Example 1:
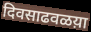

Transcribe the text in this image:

दिवसाढवळय़ा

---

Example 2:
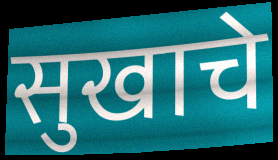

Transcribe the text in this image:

सुखाचे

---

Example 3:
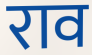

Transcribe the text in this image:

राव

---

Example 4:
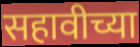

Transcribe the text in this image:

सहावीच्या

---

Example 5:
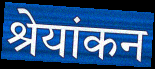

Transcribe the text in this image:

श्रेयांकन